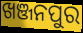
ଖଞ୍ଜନପୁର